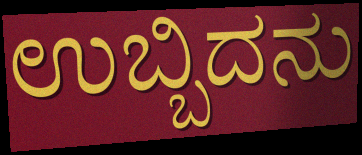
ಉಬ್ಬಿದನು